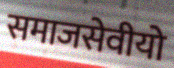
समाजसेवीयो